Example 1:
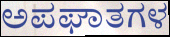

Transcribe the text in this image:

ಅಪಘಾತಗಳ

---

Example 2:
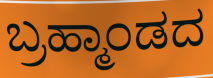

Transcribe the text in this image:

ಬ್ರಹ್ಮಾಂಡದ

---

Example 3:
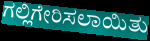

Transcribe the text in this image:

ಗಲ್ಲಿಗೇರಿಸಲಾಯಿತು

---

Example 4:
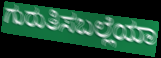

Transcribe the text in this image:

ಗುರುತಿಸಬಲ್ಲೆಯಾ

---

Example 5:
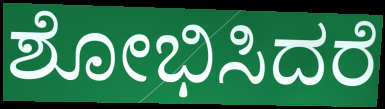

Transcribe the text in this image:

ಶೋಭಿಸಿದರೆ